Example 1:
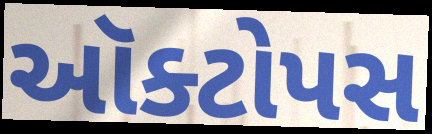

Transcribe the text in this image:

ઑક્ટોપસ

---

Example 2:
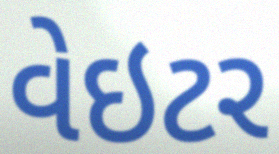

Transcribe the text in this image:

વેઇટર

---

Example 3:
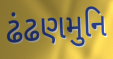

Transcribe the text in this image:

ઢંઢણમુનિ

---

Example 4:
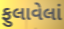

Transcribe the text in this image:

ફુલાવેલાં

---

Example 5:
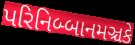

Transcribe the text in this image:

પરિનિબ્બાનમઞ્ચકે